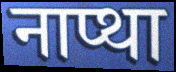
नाप्था